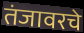
तंजावरचे